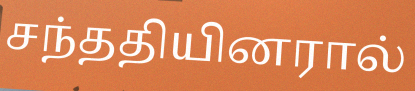
சந்ததியினரால்